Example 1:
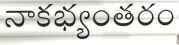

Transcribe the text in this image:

నాకభ్యంతరం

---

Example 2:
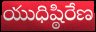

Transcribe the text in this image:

యుధిష్ఠిరేణ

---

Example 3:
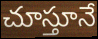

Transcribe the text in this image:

చూస్తూనే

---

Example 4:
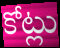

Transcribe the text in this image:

కోట్లు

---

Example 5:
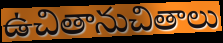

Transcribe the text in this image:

ఉచితానుచితాలు